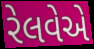
રેલવેએ